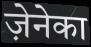
ज़ेनेका